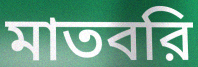
মাতবরি